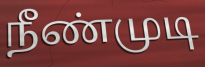
நீண்முடி